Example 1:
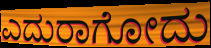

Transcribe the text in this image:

ಎದುರಾಗೋದು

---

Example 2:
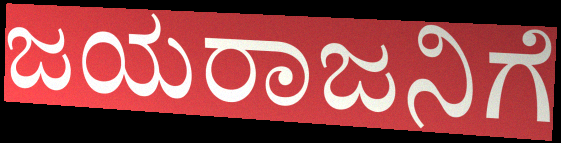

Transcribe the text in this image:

ಜಯರಾಜನಿಗೆ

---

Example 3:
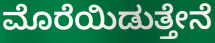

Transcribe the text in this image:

ಮೊರೆಯಿಡುತ್ತೇನೆ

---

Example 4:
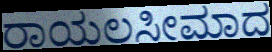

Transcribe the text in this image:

ರಾಯಲಸೀಮಾದ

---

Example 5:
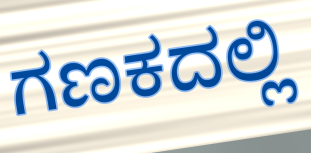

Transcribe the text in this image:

ಗಣಕದಲ್ಲಿ